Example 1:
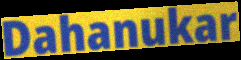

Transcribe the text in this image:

Dahanukar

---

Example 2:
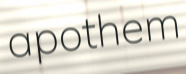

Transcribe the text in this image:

apothem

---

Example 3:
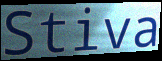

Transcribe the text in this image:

Stiva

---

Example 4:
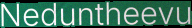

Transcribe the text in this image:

Neduntheevu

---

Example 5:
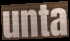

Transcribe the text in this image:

unta